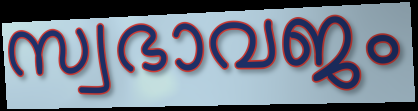
സ്വഭാവജം